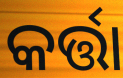
କର୍ତ୍ତା